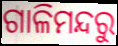
ଗାଳିମନ୍ଦରୁ